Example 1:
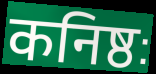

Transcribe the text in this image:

कनिष्ठः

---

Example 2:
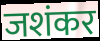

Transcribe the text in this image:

जशंकर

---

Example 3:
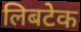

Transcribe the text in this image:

लिबटेक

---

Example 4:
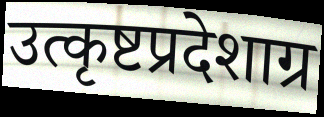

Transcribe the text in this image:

उत्कृष्टप्रदेशाग्र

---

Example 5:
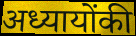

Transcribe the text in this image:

अध्यायोंकी